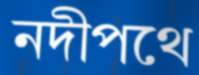
নদীপথে